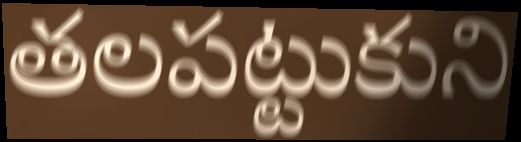
తలపట్టుకుని